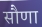
सौणा